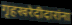
गृहखरेदीदारांना